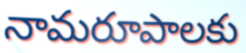
నామరూపాలకు